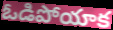
ఓడిపోయాక